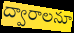
ద్వారాలనూ